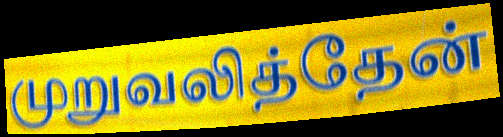
முறுவலித்தேன்